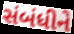
સંબંધીને